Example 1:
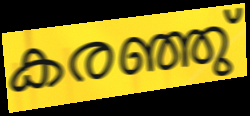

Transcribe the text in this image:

കരഞ്ഞു്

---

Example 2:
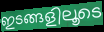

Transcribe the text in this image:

ഇടങ്ങളിലൂടെ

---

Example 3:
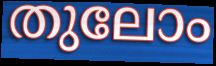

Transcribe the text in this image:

തുലോം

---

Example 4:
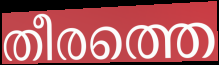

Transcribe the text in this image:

തീരത്തെ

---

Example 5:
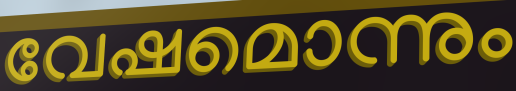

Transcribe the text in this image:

വേഷമൊന്നും